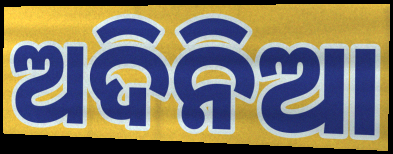
ଅଦିନିଆ